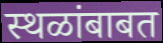
स्थळांबाबत